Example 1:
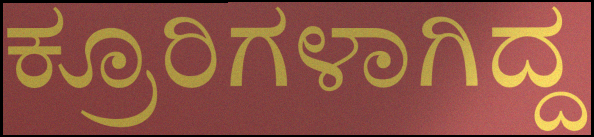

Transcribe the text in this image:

ಕ್ರೂರಿಗಳಾಗಿದ್ದ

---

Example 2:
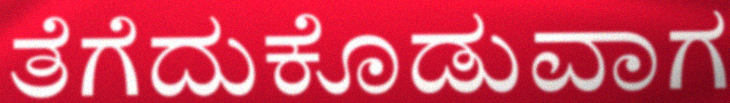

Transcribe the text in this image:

ತೆಗೆದುಕೊಡುವಾಗ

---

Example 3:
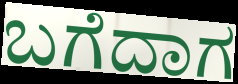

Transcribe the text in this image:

ಬಗೆದಾಗ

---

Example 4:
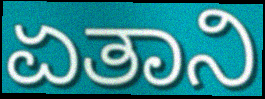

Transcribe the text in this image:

ಏತಾನಿ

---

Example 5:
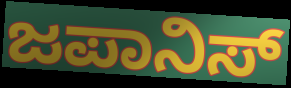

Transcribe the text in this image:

ಜಪಾನಿಸ್